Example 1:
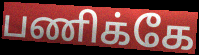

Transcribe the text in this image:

பணிக்கே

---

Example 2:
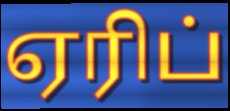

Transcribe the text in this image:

ஏரிப்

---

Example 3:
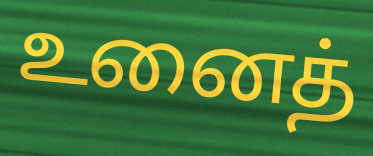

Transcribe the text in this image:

உனைத்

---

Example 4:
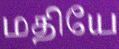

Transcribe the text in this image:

மதியே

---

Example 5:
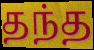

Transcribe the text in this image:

தந்த